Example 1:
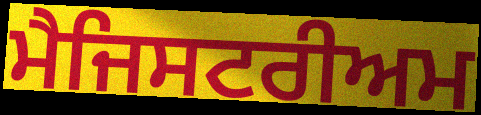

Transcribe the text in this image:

ਮੈਜਿਸਟਰੀਅਮ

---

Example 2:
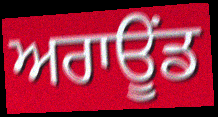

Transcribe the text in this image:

ਅਰਾਊਂਡ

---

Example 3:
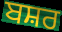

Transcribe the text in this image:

ਬਸ਼ਰ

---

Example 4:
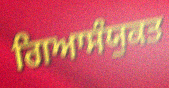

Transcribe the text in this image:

ਗਿਆਸੰਯੁਕਤ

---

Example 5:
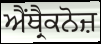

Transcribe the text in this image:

ਐਂਥ੍ਰੈਕਨੋਜ਼